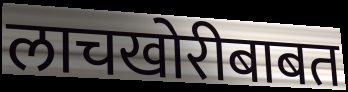
लाचखोरीबाबत